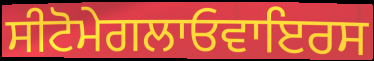
ਸੀਟੋਮੇਗਲਾਓਵਾਇਰਸ